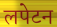
लपेटन